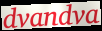
dvandva